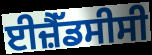
ਈਜ਼ੈੱਡਸੀਸੀ